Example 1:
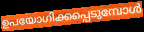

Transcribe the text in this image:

ഉപയോഗിക്കപ്പെടുമ്പോൾ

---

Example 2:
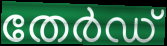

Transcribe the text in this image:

തേർഡ്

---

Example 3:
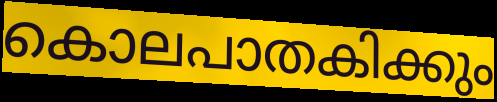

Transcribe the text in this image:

കൊലപാതകിക്കും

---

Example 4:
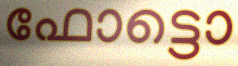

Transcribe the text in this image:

ഫോട്ടൊ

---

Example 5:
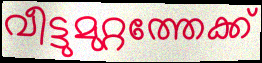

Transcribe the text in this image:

വീട്ടുമുറ്റത്തേക്ക്